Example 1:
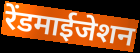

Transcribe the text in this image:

रेंडमाईजेशन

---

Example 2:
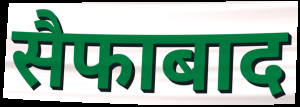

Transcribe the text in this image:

सैफाबाद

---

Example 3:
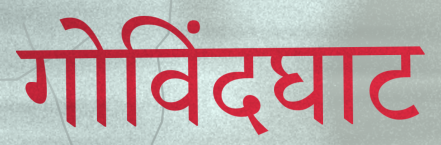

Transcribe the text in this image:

गोविंदघाट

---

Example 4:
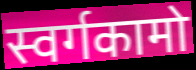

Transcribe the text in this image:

स्वर्गकामो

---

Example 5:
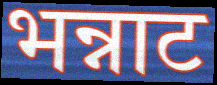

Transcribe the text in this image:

भन्नाट